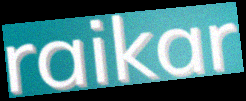
raikar